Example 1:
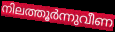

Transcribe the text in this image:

നിലത്തൂർന്നുവീണ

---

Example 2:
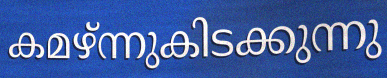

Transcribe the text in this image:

കമഴ്ന്നുകിടക്കുന്നു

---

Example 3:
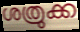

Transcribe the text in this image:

ശത്രുക്ക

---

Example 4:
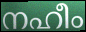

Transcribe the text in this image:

നഹീം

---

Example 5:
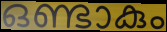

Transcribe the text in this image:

ഒണ്ടാകും